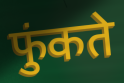
फुंकते